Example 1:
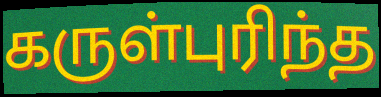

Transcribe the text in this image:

கருள்புரிந்த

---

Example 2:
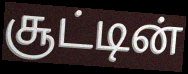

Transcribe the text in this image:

சூட்டின்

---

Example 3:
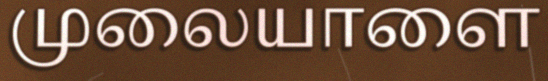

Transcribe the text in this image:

முலையாளை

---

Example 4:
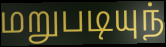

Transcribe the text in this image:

மறுபடியுந்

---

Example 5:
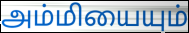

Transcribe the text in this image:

அம்மியையும்